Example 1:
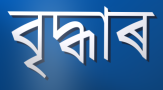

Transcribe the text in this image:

বৃদ্ধাৰ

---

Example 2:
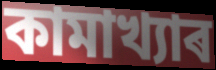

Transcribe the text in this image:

কামাখ্যাৰ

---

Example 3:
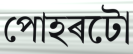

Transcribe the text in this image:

পোহৰটো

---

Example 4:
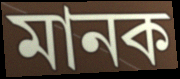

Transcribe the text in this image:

মানক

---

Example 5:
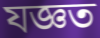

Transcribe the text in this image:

যজ্ঞত